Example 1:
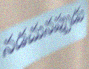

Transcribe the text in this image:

నడచునప్పుడు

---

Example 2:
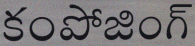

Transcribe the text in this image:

కంపోజింగ్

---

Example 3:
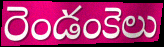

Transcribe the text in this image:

రెండంకెలు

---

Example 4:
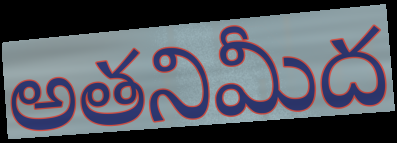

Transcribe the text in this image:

అతనిమీద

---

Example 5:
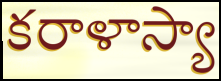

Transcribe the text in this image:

కరాళాస్యా